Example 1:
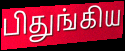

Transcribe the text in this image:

பிதுங்கிய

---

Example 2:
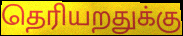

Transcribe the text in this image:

தெரியறதுக்கு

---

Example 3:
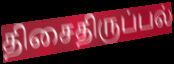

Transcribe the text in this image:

திசைதிருப்பல்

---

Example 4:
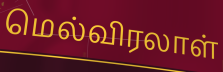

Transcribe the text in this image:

மெல்விரலாள்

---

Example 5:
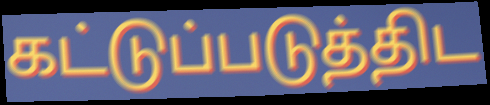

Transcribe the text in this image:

கட்டுப்படுத்திட